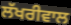
ਲੱਖਰੀਵਾਲ